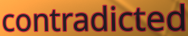
contradicted